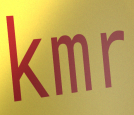
kmr